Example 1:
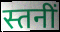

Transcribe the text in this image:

स्तनीं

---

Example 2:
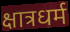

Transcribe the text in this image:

क्षात्रधर्म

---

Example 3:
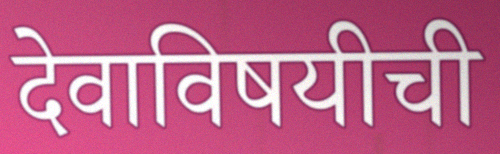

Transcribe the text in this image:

देवाविषयीची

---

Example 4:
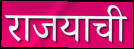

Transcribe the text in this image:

राजयाची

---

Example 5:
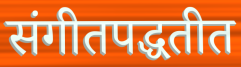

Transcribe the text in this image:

संगीतपद्धतीत